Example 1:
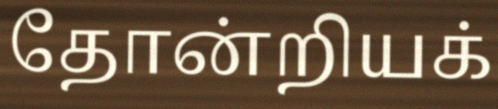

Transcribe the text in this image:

தோன்றியக்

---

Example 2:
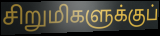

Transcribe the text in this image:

சிறுமிகளுக்குப்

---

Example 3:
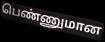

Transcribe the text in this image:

பெண்ணுமான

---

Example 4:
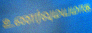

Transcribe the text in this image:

உணர்வுமயமாக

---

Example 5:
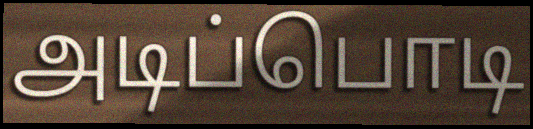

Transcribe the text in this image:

அடிப்பொடி